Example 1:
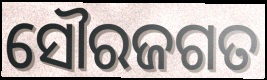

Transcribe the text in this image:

ସୌରଜଗତ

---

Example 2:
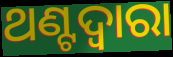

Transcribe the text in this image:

ଥଣ୍ଟଦ୍ୱାରା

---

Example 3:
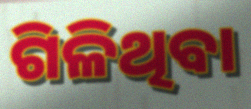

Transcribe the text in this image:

ଗିଳିଥିବା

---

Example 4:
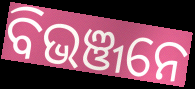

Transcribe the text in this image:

ବିଭଞ୍ଜନେ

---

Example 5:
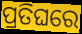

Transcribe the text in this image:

ପ୍ରତିଘରେ